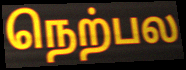
நெற்பல